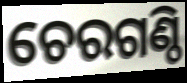
ଚେରଗଣ୍ଠି